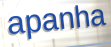
apanha